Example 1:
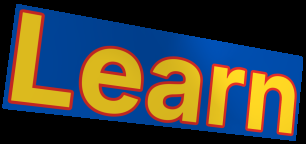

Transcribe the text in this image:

Learn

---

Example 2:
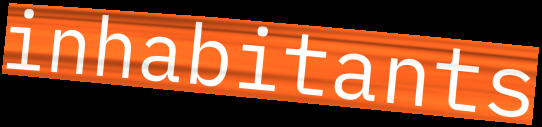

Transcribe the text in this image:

inhabitants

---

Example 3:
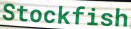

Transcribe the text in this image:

Stockfish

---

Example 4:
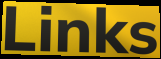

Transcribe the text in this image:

Links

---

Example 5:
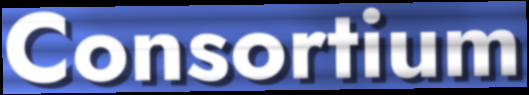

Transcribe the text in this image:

Consortium